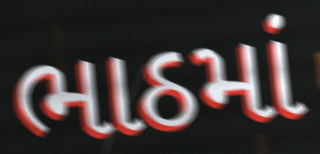
ભાઠમાં